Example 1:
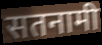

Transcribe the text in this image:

सतनामी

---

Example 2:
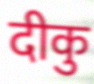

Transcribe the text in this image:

दीकु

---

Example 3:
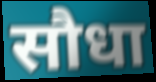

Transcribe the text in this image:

सौधा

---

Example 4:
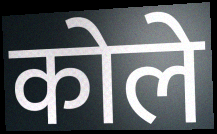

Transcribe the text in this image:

कोले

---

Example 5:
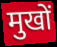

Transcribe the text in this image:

मुखों